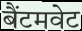
बैंटमवेट